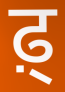
ड़्